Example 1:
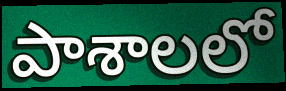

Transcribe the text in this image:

పాశాలలో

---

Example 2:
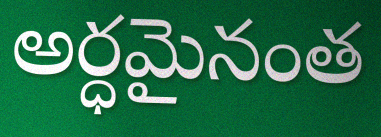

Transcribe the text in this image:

అర్ధమైనంత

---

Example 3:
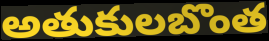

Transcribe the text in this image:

అతుకులబొంత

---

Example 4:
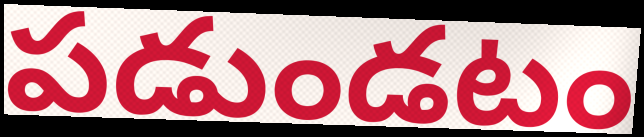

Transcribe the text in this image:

పడుండటం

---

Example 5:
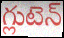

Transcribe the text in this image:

గ్లుటెన్